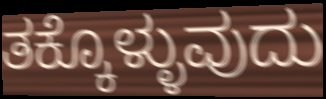
ತಕ್ಕೊಳ್ಳುವುದು